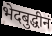
भेदबुद्धीनं